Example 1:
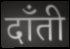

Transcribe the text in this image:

दाँती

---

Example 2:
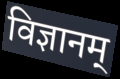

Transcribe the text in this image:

विज्ञानम्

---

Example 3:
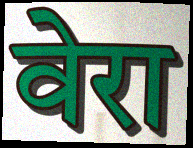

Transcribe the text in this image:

वेरा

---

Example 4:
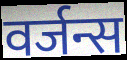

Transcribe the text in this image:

वर्जन्स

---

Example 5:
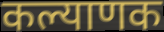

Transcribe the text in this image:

कल्याणक